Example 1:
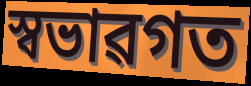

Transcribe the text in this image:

স্বভাৱগত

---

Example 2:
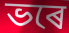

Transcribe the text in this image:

ভৰে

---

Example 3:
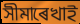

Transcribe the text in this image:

সীমাৰেখাই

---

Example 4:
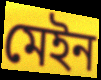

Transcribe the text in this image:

মেইন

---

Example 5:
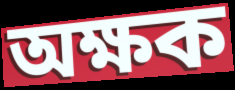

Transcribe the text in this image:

অক্ষক